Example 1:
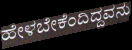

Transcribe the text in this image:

ಹೇಳಬೇಕೆಂದಿದ್ದವನು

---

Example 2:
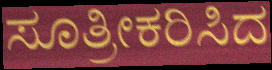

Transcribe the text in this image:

ಸೂತ್ರೀಕರಿಸಿದ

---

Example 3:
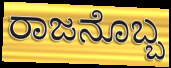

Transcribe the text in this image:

ರಾಜನೊಬ್ಬ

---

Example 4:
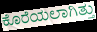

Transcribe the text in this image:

ಕೊರೆಯಲಾಗಿತ್ತು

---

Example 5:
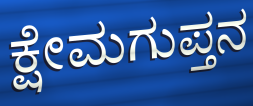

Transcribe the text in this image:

ಕ್ಷೇಮಗುಪ್ತನ